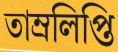
তাম্রলিপ্তি